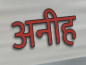
अनीह